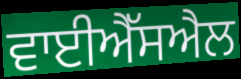
ਵਾਈਐੱਸਐਲ